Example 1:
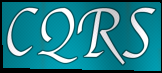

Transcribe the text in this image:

CQRS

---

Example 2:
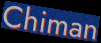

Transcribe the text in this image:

Chiman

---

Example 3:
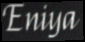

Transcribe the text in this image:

Eniya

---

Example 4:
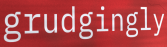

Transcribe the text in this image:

grudgingly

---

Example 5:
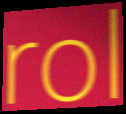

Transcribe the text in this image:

rol